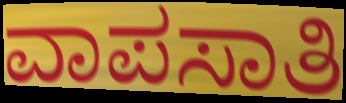
ವಾಪಸಾತಿ